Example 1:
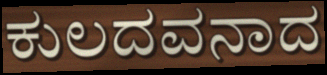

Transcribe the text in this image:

ಕುಲದವನಾದ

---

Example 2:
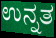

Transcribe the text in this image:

ಉನ್ನತ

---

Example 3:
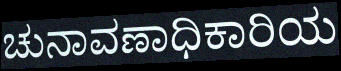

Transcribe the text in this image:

ಚುನಾವಣಾಧಿಕಾರಿಯ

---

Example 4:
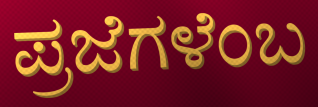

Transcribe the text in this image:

ಪ್ರಜೆಗಳೆಂಬ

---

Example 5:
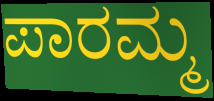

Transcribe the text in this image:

ಪಾರಮ್ಮ